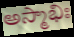
అస్మాభిః